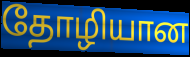
தோழியான